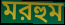
মরহুম